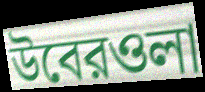
উবেরওলা